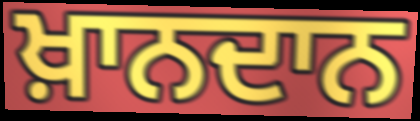
ਖ਼ਾਨਦਾਨ